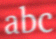
abc